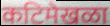
कटिमेखळा